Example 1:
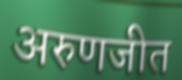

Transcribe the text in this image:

अरुणजीत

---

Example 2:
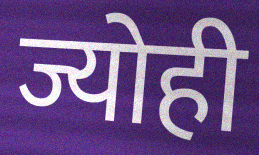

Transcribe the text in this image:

ज्योही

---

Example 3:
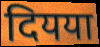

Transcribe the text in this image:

दियया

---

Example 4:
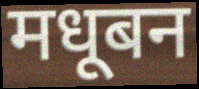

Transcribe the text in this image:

मधूबन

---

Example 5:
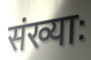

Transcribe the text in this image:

संख्याः